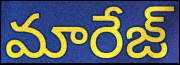
మారేజ్